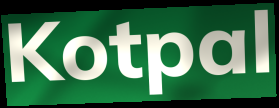
Kotpal